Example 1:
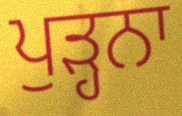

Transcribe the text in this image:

ਪੁੜ੍ਹਨਾ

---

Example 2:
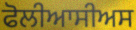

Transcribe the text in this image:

ਫੋਲੀਆਸੀਅਸ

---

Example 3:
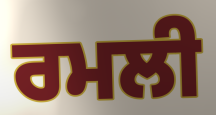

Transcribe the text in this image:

ਰਮਲੀ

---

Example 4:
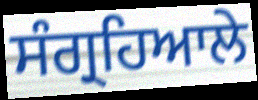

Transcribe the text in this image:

ਸੰਗ੍ਰਹਿਆਲੇ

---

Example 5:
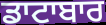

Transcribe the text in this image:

ਡਾਟਾਬਾਰ